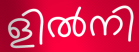
ളിൽനി